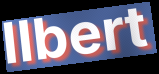
Ilbert